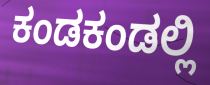
ಕಂಡಕಂಡಲ್ಲಿ